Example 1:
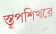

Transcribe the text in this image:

স্তূপশিখরে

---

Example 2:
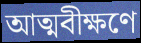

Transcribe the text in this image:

আত্মবীক্ষণে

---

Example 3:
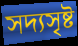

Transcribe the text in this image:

সদ্যসৃষ্ট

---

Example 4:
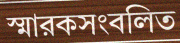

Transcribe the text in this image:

স্মারকসংবলিত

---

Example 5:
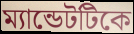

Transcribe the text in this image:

ম্যান্ডেটটিকে